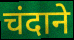
चंदाने